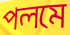
পলমে